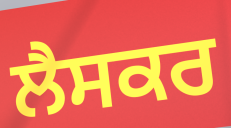
ਲੈਸਕਰ